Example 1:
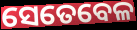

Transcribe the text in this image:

ସେତେବେଳ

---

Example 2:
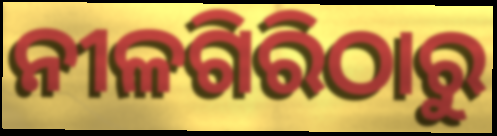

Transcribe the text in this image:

ନୀଳଗିରିଠାରୁ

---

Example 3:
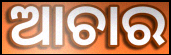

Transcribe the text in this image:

ଆଚାର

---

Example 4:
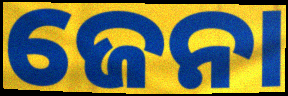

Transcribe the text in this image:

ଜେନା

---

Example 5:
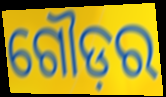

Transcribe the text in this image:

ଗୌଡ଼ର